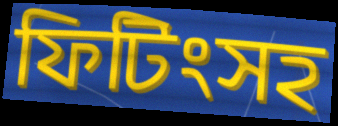
ফিটিংসহ